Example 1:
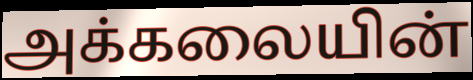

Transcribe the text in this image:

அக்கலையின்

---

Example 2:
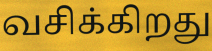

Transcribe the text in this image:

வசிக்கிறது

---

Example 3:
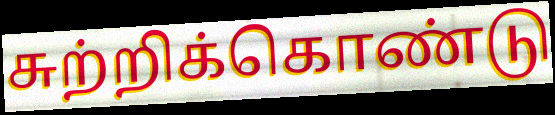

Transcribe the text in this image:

சுற்றிக்கொண்டு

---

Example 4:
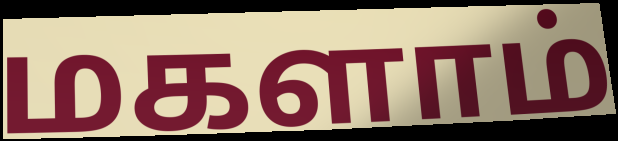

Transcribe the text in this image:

மகளாம்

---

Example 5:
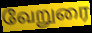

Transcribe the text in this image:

வேறுரை